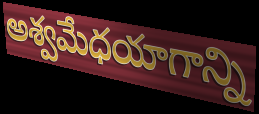
అశ్వమేధయాగాన్ని